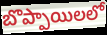
బొప్పాయిలలో